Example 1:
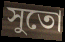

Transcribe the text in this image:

সুতো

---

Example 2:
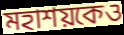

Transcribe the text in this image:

মহাশয়কেও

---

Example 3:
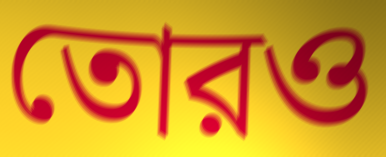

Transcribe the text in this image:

তোরও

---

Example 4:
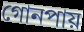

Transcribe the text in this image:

গোনপায়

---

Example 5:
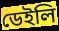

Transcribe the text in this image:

ডেইলি